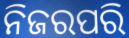
ନିଜରପରି